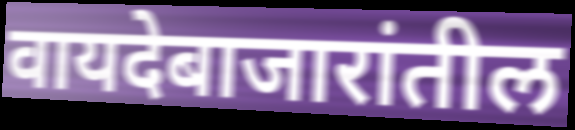
वायदेबाजारांतील